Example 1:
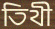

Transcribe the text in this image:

তিথী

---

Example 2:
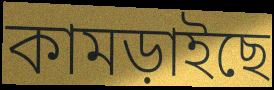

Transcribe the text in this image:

কামড়াইছে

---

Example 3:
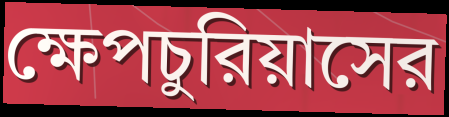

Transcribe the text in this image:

ক্ষেপচুরিয়াসের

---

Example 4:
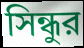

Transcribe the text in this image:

সিন্ধুর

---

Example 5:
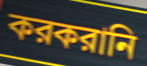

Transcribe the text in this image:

করকরানি